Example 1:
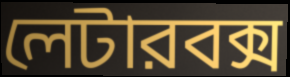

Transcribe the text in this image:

লেটারবক্স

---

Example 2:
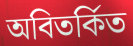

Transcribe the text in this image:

অবিতর্কিত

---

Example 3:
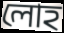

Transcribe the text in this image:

লোহ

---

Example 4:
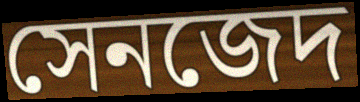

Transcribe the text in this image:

সেনজেদ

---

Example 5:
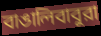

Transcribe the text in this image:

বাঙালিবাবুরা